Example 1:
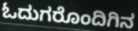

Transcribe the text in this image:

ಓದುಗರೊಂದಿಗಿನ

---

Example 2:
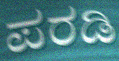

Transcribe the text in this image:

ಪರಡಿ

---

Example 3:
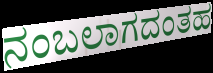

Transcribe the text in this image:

ನಂಬಲಾಗದಂತಹ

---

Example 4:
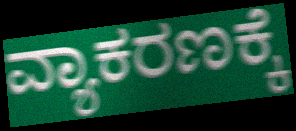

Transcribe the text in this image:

ವ್ಯಾಕರಣಕ್ಕೆ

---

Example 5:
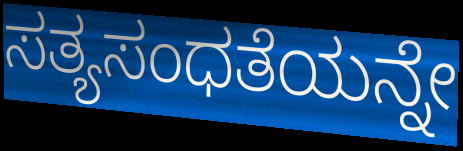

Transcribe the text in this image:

ಸತ್ಯಸಂಧತೆಯನ್ನೇ